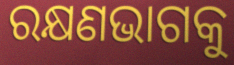
ରକ୍ଷଣଭାଗକୁ